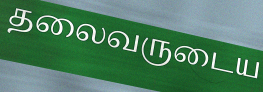
தலைவருடைய